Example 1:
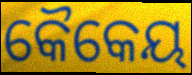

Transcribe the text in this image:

କୈକେୟ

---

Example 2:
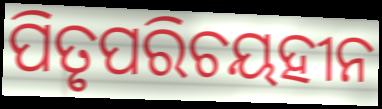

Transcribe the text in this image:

ପିତୃପରିଚୟହୀନ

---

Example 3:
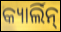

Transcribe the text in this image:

କ୍ୟାର୍ଲିନ୍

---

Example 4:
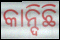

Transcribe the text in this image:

କାନ୍ଦିଛି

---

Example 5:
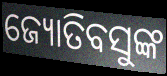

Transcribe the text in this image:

ଜ୍ୟୋତିବସୁଙ୍କ